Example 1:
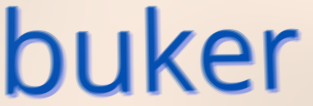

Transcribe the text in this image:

buker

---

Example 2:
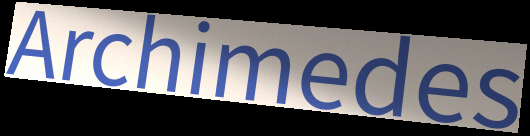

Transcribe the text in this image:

Archimedes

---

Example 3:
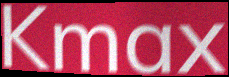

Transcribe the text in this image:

Kmax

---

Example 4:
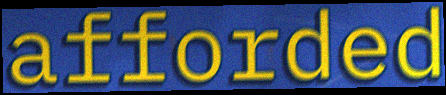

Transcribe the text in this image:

afforded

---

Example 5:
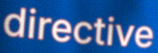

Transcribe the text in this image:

directive